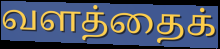
வளத்தைக்